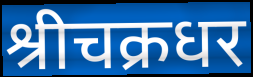
श्रीचक्रधर